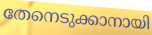
തേനെടുക്കാനായി